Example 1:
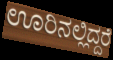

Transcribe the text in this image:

ಊರಿನಲ್ಲಿದ್ದರೆ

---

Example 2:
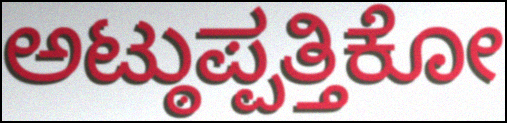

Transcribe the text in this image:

ಅಟ್ಠುಪ್ಪತ್ತಿಕೋ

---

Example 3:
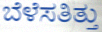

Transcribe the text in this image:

ಬೆಳೆಸತಿತ್ತು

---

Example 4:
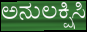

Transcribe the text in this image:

ಅನುಲಕ್ಷಿಸಿ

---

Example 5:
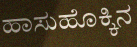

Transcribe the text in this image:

ಹಾಸುಹೊಕ್ಕಿನ